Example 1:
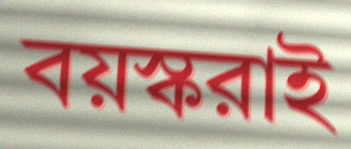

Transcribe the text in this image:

বয়স্করাই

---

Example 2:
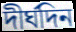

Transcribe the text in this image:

দীর্ঘদিন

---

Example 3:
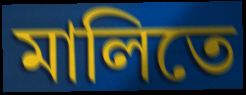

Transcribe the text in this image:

মালিতে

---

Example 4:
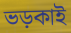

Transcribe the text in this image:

ভড়কাই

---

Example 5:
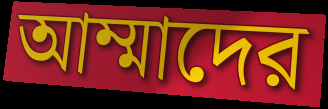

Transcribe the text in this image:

আম্মাদের